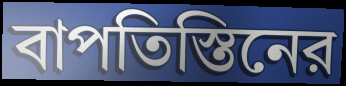
বাপতিস্তিনের